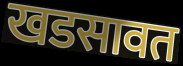
खडसावत